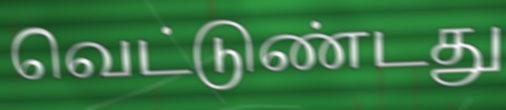
வெட்டுண்டது